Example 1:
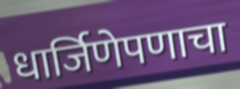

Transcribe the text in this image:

धार्जिणेपणाचा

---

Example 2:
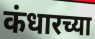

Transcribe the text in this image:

कंधारच्या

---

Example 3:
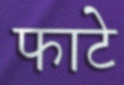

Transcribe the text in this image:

फाटे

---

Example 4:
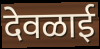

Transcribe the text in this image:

देवळाई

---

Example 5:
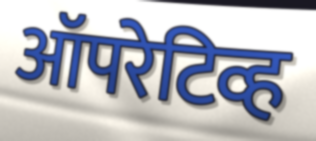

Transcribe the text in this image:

ऑपरेटिव्ह